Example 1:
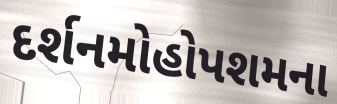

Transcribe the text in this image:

દર્શનમોહોપશમના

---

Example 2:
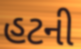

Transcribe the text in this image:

હટની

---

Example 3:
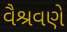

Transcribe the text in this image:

વૈશ્રવણે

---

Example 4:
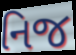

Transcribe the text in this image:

નિજ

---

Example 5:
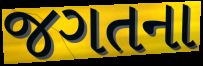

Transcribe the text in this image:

જગતના